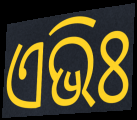
ଏଭିଃ